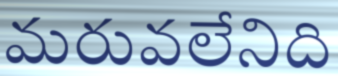
మరువలేనిది